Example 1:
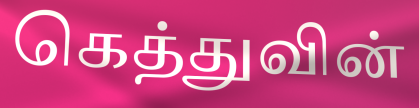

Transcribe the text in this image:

கெத்துவின்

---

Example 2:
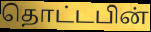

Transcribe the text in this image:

தொட்டபின்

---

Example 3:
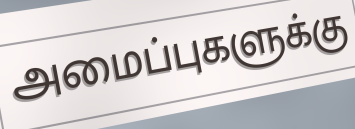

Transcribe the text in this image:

அமைப்புகளுக்கு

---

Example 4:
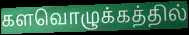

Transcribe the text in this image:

களவொழுக்கத்தில்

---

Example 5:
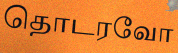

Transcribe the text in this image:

தொடரவோ